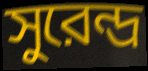
সুরেন্দ্র